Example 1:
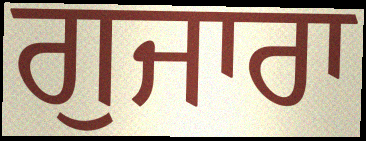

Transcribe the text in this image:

ਗੁਜਾਰਾ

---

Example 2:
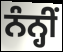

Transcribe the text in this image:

ਨੰਨ੍ਹੀਂ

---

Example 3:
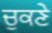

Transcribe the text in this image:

ਚੁਕਣੇ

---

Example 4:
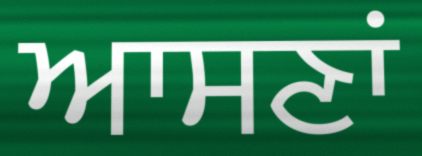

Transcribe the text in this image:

ਆਸਣਾਂ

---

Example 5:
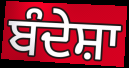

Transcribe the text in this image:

ਬੰਦੇਸ਼ਾ